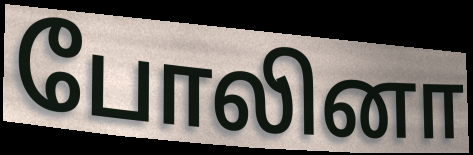
போலினா